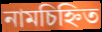
নামচিহ্নিত